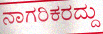
ನಾಗರಿಕರದ್ದು